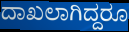
ದಾಖಲಾಗಿದ್ದರೂ